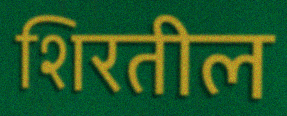
शिरतील